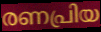
രണപ്രിയ